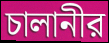
চালানীর